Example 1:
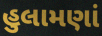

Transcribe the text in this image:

હુલામણાં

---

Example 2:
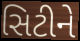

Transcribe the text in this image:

સિટીને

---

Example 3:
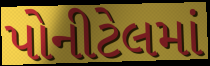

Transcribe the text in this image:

પોનીટેલમાં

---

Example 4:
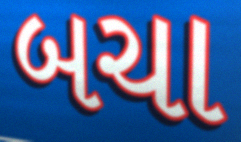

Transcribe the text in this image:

બચા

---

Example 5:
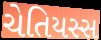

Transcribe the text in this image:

ચેતિયસ્સ